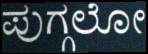
ಪುಗ್ಗಲೋ